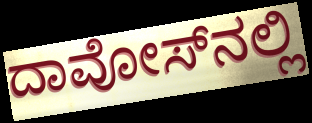
ದಾವೋಸ್‌ನಲ್ಲಿ